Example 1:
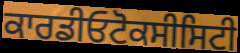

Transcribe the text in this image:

ਕਾਰਡੀਓਟੋਕਸੀਸਿਟੀ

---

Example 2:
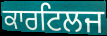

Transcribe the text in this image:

ਕਾਰਟਿਲਜ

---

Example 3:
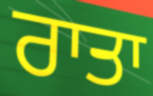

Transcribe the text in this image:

ਰਾਤਾ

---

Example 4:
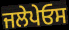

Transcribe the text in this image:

ਜਲੇਪੇਓਸ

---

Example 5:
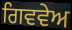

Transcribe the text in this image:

ਗਿਵਵੇਅ